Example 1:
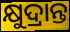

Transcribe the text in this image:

କ୍ଷୁଦ୍ରାନ୍ତ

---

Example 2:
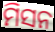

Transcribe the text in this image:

ମିସନ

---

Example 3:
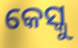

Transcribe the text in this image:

କେସ୍କୁ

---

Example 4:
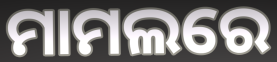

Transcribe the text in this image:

ମାମଲରେ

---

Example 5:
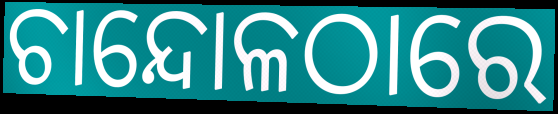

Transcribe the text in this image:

ଚାନ୍ଦୋଳଠାରେ